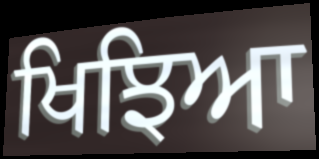
ਖਿਝਿਆ